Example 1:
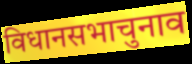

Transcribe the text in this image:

विधानसभाचुनाव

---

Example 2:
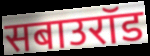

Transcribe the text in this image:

सबाउरॉड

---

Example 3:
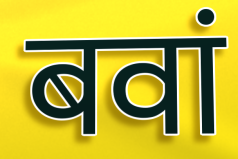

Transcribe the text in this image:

बवां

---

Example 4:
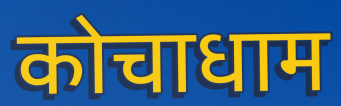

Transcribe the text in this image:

कोचाधाम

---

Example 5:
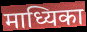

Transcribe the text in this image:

माध्यिका